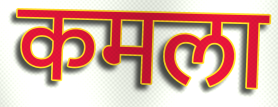
कमला